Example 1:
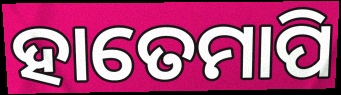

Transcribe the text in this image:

ହାତେମାପି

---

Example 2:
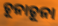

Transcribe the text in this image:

ଚୂନାଚୂନା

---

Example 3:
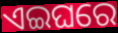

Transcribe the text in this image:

ଏଇଘରେ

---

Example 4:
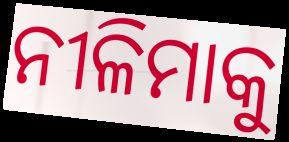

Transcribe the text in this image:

ନୀଳିମାକୁ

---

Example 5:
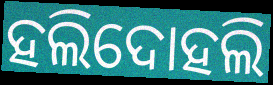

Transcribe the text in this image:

ହଲିଦୋହଲି